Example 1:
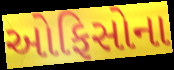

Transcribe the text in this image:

ઓફિસોના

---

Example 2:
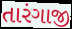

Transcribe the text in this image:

તારંગાજી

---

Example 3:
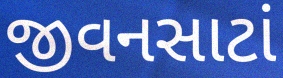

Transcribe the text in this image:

જીવનસાટાં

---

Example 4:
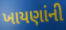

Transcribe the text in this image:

ખાયણાંની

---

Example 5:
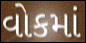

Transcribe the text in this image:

વોકમાં